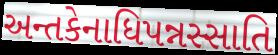
અન્તકેનાધિપન્નસ્સાતિ